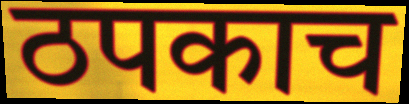
ठपकाच